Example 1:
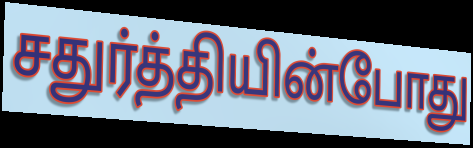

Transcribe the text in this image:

சதுர்த்தியின்போது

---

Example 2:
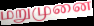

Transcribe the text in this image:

மறுமுனை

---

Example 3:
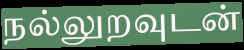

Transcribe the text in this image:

நல்லுறவுடன்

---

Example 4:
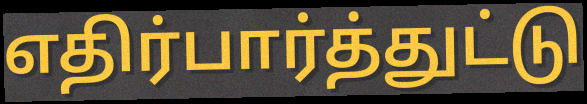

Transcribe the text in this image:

எதிர்பார்த்துட்டு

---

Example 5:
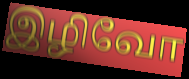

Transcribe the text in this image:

இழிவோ